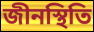
জীনস্থিতি